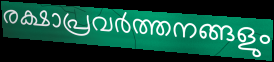
രക്ഷാപ്രവർത്തനങ്ങളും